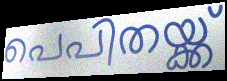
പെപിതയ്ക്ക്